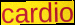
cardio